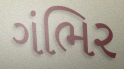
ગંભિર